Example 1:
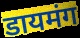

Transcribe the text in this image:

डायमंग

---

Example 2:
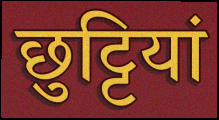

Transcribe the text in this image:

छुट्टियां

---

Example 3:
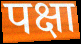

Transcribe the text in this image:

पक्षा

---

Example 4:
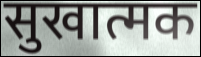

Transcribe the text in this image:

सुखात्मक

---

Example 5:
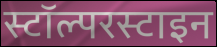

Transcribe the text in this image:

स्टॉल्परस्टाइन